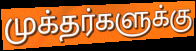
முக்தர்களுக்கு